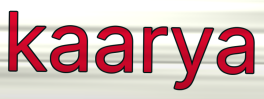
kaarya